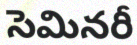
సెమినరీ